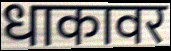
धाकावर